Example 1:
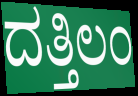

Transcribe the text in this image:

ದತ್ತಿಲಂ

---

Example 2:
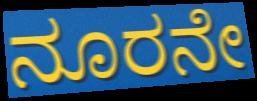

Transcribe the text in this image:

ನೂರನೇ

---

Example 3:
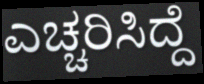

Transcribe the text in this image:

ಎಚ್ಚರಿಸಿದ್ದೆ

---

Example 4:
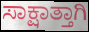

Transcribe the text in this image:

ಸಾಕ್ಷಾತ್ತಾಗಿ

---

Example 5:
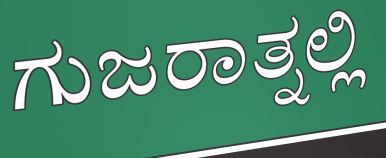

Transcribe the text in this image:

ಗುಜರಾತ್ನಲ್ಲಿ